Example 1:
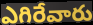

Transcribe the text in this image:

ఎగిరేవారు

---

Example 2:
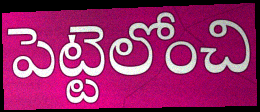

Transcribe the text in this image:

పెట్టెలోంచి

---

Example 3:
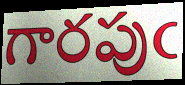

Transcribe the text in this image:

గారపుఁ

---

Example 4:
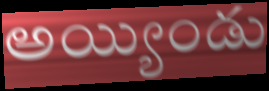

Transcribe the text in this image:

అయ్యిండు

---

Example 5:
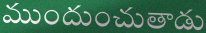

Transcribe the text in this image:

ముందుంచుతాడు